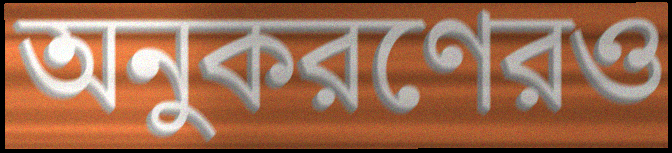
অনুকরণেরও